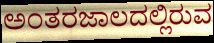
ಅಂತರಜಾಲದಲ್ಲಿರುವ